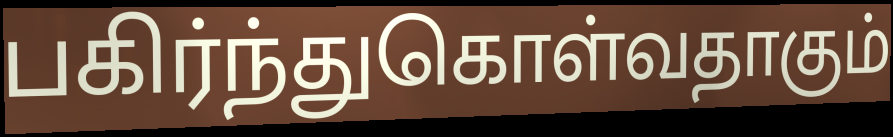
பகிர்ந்துகொள்வதாகும்